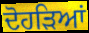
ਦੋਹੜਿਆਂ